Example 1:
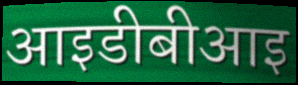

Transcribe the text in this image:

आइडीबीआइ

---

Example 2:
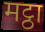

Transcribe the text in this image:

मट्ठा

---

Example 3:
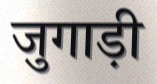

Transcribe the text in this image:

जुगाड़ी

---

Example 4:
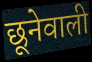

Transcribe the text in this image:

छूनेवाली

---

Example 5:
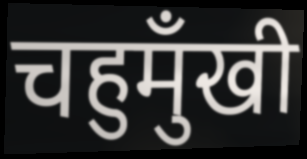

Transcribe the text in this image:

चहुमुँखी